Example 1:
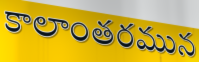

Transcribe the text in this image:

కాలాంతరమున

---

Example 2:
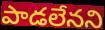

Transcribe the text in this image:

పాడలేనని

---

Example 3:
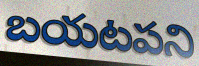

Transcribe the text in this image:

బయటపని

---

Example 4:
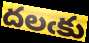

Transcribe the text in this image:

దలఁకు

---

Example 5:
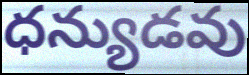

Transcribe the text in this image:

ధన్యుడవు